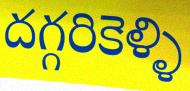
దగ్గరికెళ్ళి